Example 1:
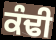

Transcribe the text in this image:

ਕੰਢੀ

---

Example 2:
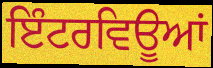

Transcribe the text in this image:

ਇੰਟਰਵਿਊਆਂ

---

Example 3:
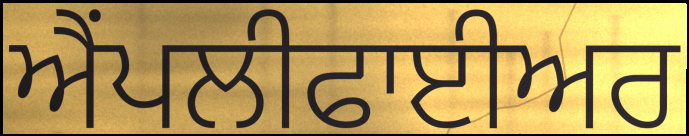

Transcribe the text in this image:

ਐੰਪਲੀਫਾਈਅਰ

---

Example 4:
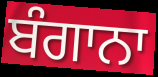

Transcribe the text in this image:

ਬੰਗਾਨਾ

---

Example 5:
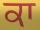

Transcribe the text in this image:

ਕਾ